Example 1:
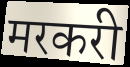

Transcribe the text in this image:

मरकरी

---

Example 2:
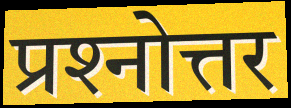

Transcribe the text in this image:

प्रश्‍नोत्तर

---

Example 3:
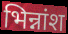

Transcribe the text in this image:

भिन्नांश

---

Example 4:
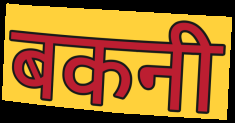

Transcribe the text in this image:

बकनी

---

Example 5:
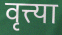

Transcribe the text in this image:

वृत्त्या